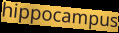
hippocampus